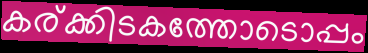
കര്ക്കിടകത്തോടൊപ്പം